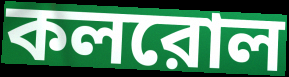
কলরোল